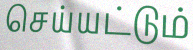
செய்யட்டும்